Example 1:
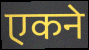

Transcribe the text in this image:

एकने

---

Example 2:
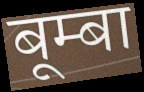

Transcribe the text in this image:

बूम्बा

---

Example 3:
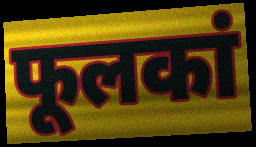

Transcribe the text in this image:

फूलकां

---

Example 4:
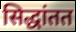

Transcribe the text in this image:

सिद्धांतत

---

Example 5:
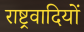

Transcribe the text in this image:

राष्ट्रवादियों